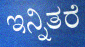
ಇನ್ನಿತರೆ